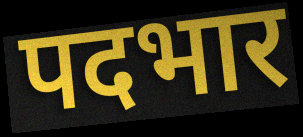
पदभार